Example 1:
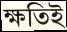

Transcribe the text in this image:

ক্ষতিই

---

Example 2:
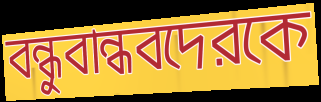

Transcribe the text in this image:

বন্ধুবান্ধবদেরকে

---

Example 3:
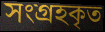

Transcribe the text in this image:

সংগ্রহকৃত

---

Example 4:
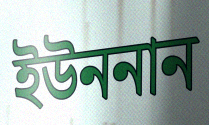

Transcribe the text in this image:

ইউননান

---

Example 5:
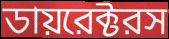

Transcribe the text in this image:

ডায়রেক্টরস